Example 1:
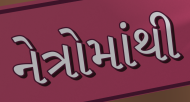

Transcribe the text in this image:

નેત્રોમાંથી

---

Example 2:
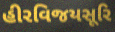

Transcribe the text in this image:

હીરવિજયસૂરિ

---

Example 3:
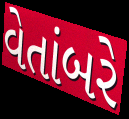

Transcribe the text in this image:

વેતાંબરે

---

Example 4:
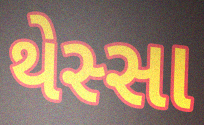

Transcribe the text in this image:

થેસ્સા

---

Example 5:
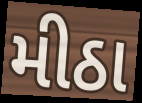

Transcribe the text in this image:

મીઠા